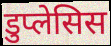
डुप्लेसिस